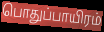
பொதுப்பாயிரம்